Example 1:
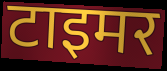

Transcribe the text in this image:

टाइमर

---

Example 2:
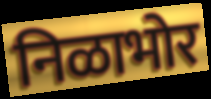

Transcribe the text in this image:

निळाभोर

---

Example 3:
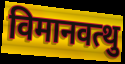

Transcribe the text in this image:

विमानवत्थु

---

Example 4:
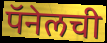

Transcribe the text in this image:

पॅनेलची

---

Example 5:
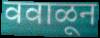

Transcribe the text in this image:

ववाळून